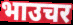
भाउचर